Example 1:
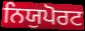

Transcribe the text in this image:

ਨਿਯੁਪੋਰਟ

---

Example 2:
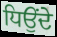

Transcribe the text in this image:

ਧਿਉਂਦੇ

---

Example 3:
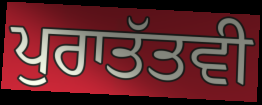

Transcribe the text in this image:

ਪੁਰਾਤੱਤਵੀ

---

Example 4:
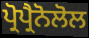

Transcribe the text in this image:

ਪ੍ਰੋਪ੍ਰੈਨੋਲੋਲ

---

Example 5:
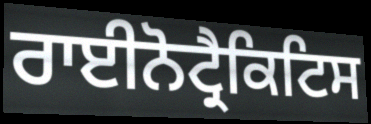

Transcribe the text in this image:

ਰਾਈਨੋਟ੍ਰੈਕਿਟਿਸ